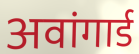
अवांगार्ड